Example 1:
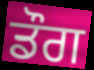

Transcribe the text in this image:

ਡੌਗ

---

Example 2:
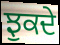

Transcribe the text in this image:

ਝੁਕਦੇ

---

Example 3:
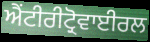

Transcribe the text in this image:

ਐਂਟੀਰੀਟ੍ਰੋਵਾਈਰਲ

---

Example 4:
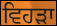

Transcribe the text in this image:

ਵਿਹੜਾ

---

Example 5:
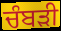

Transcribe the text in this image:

ਚੰਬੜੀ